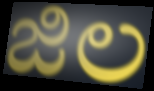
జిల